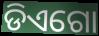
ଡିଏଗୋ